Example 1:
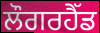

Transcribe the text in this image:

ਲੌਗਰਹੈੱਡ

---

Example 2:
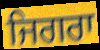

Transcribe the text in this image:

ਜਿਗਰਾ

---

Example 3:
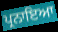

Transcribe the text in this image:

ਪ੍ਰਨਾਇਆ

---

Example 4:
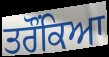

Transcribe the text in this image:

ਤਰੌਂਕਿਆ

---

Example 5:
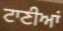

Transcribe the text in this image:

ਟਾਣੀਆਂ